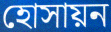
হোসায়ন